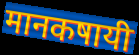
मानकषायी